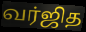
வர்ஜித